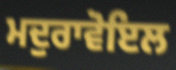
ਮਦੁਰਾਵੋਇਲ